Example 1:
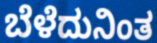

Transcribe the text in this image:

ಬೆಳೆದುನಿಂತ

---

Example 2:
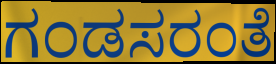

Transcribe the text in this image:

ಗಂಡಸರಂತೆ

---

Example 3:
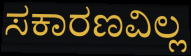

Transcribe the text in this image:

ಸಕಾರಣವಿಲ್ಲ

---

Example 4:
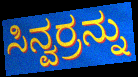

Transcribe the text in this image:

ಸಿನ್ವರ್ರನ್ನು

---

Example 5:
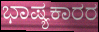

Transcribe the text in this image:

ಭಾಷ್ಯಕಾರರ